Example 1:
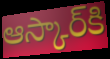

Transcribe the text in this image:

ఆస్కార్‌కి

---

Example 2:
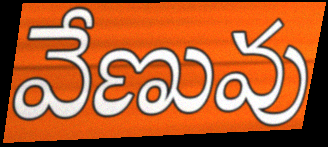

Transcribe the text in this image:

వేణువు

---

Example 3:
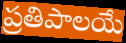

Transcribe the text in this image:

ప్రతిపాలయే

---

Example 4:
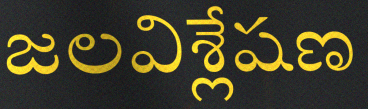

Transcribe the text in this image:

జలవిశ్లేషణ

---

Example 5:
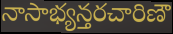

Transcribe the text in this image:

నాసాభ్యన్తరచారిణౌ